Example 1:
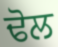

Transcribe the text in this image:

ਢੋਲ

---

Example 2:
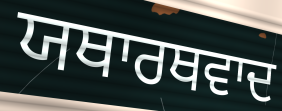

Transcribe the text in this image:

ਯਥਾਰਥਵਾਦ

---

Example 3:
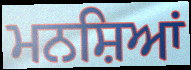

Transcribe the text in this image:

ਮਨਸ਼ਿਆਂ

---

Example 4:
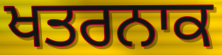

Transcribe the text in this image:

ਖਤਰਨਾਕ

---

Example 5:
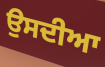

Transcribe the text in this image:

ਉਸਦੀਆ